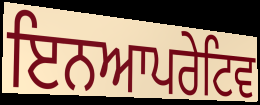
ਇਨਆਪਰੇਟਿਵ